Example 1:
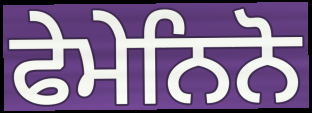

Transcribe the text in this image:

ਫੇਮੇਨਿਨੋ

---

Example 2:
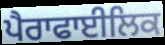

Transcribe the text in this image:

ਪੈਰਾਫਾਈਲਿਕ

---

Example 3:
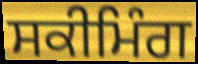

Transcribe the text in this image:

ਸਕੀਮਿੰਗ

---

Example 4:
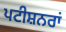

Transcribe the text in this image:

ਪਟੀਸ਼ਨਰਾਂ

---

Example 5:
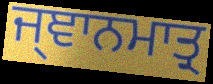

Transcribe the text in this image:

ਜ੍ਞਾਨਮਾਤ੍ਰ